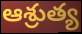
ఆశ్రుత్య